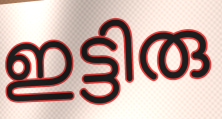
ഇട്ടിരു